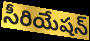
సీరియేషన్